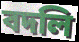
বদলি